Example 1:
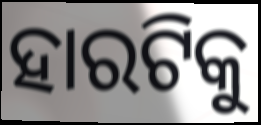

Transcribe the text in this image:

ହାରଟିକୁ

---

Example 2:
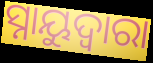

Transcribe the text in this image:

ସ୍ନାୟୁଦ୍ଵାରା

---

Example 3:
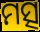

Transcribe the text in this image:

ମତ୍ସ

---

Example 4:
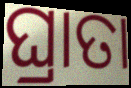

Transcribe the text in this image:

ଘ୍ରାତା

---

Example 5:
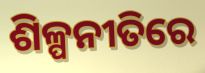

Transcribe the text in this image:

ଶିଳ୍ପନୀତିରେ